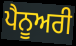
ਪੈਨੂਅਰੀ